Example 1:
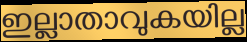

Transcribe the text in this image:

ഇല്ലാതാവുകയില്ല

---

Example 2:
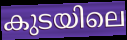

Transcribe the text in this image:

കുടയിലെ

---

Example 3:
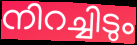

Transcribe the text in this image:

നിറച്ചിടും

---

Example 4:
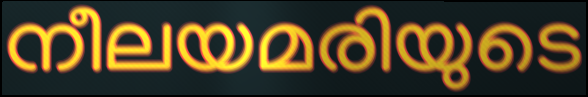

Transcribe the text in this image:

നീലയമരിയുടെ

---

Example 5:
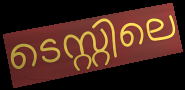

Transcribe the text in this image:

ടെസ്റ്റിലെ